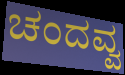
ಚಂದವ್ವ